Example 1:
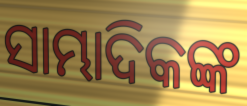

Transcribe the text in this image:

ସାମ୍ଭାଦିକଙ୍କ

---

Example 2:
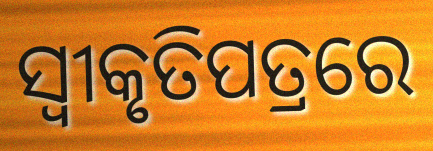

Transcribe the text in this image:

ସ୍ୱୀକୃତିପତ୍ରରେ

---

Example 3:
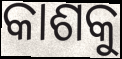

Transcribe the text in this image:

କାଶକୁ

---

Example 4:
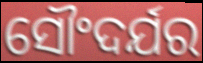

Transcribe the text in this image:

ସୌଂଦର୍ଯର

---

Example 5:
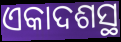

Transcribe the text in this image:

ଏକାଦଶସ୍ଥ